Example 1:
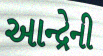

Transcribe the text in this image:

આન્દ્રેની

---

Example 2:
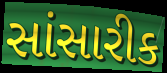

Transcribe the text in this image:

સાંસારીક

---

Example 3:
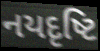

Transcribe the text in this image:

નયદૃષ્ટિ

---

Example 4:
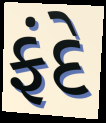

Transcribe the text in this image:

ફંદે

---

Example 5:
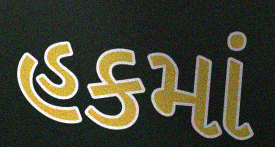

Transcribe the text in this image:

હકમાં